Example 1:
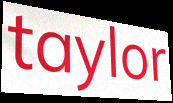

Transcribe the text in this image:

taylor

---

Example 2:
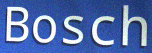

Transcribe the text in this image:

Bosch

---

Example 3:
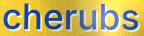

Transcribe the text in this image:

cherubs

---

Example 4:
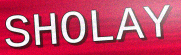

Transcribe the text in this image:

SHOLAY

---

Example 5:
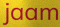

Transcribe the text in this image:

jaam